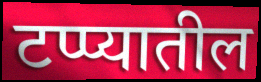
टप्प्यातील